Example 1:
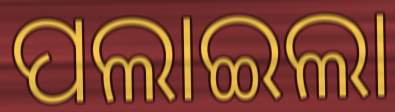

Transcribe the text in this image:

ପଲାଇଲା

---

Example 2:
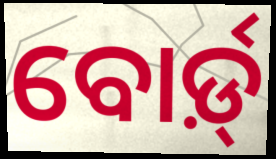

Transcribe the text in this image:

ବୋର୍ଡ଼୍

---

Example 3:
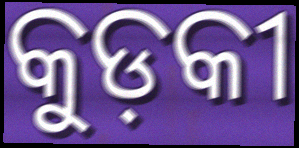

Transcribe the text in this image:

କୁଡ଼କୀ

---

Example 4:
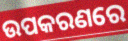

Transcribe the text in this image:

ଉପକରଣରେ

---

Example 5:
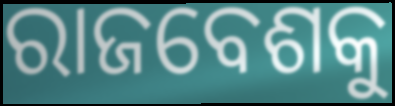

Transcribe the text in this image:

ରାଜବେଶକୁ